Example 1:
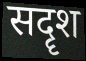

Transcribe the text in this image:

सदॄश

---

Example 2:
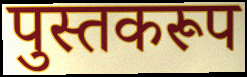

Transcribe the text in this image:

पुस्तकरूप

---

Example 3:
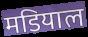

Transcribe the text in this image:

मडियाल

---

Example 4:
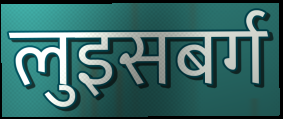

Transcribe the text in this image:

लुइसबर्ग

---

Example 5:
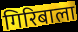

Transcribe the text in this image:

गिरिबाला